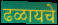
ढळायचे